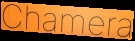
Chamera